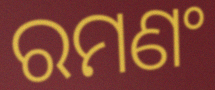
ରମଣଂ